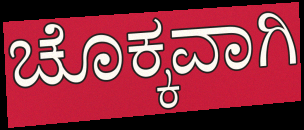
ಚೊಕ್ಕವಾಗಿ